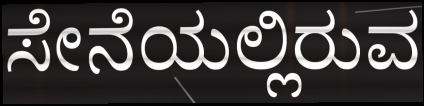
ಸೇನೆಯಲ್ಲಿರುವ